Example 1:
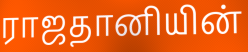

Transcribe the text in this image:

ராஜதானியின்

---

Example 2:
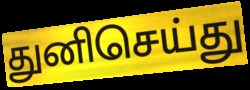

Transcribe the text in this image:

துனிசெய்து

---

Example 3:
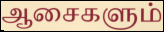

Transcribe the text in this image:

ஆசைகளும்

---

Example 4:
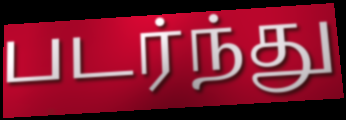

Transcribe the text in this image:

படர்ந்து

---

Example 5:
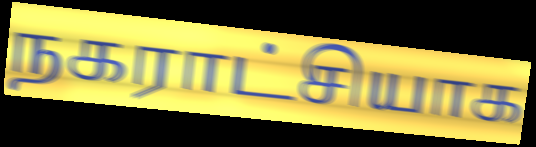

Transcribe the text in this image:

நகராட்சியாக